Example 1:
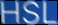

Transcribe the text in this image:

HSL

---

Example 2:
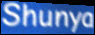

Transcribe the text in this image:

Shunya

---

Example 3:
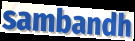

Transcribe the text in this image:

sambandh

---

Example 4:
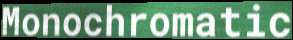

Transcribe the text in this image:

Monochromatic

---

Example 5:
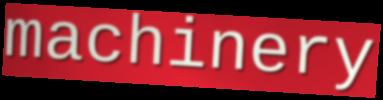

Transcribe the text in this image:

machinery